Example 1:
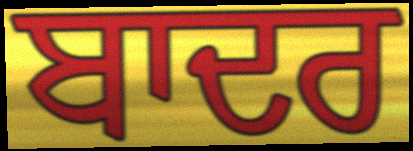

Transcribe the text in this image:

ਬਾਦਰ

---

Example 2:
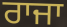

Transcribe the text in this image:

ਰਾਜਾ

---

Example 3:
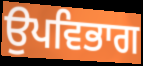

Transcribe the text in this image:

ਉਪਵਿਭਾਗ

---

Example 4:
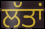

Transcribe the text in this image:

ਲੱਤਾਂ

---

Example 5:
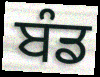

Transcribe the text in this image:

ਬੰਡ